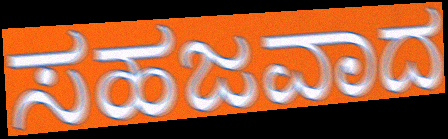
ಸಹಜವಾದ